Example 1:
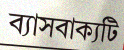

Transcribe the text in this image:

ব্যাসবাক্যটি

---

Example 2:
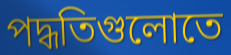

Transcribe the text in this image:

পদ্ধতিগুলোতে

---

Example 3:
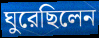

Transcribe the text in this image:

ঘুরেছিলেন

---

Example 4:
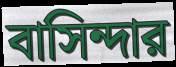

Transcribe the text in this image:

বাসিন্দার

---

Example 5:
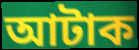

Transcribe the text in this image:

আটাক